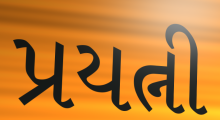
પ્રયત્ની